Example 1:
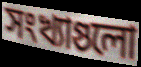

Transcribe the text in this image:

সংখ্যাগুলো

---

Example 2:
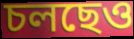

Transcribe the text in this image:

চলছেও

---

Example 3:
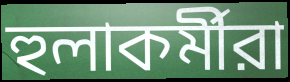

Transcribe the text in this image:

হুলাকর্মীরা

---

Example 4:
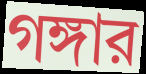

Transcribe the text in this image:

গঙ্গার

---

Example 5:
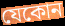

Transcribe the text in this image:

যেকোন